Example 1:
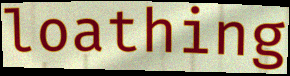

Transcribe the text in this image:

loathing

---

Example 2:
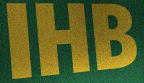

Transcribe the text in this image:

IHB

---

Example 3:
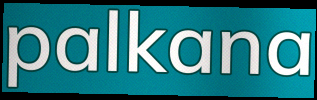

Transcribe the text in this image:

palkana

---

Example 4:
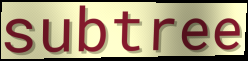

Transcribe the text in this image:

subtree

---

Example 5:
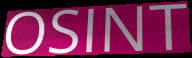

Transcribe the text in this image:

OSINT